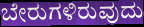
ಬೇರುಗಳಿರುವುದು